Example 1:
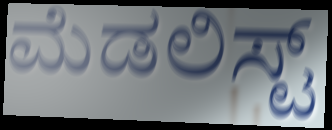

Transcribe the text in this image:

ಮೆಡಲಿಸ್ಟ್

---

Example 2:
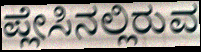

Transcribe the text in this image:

ಪ್ಲೇಸಿನಲ್ಲಿರುವ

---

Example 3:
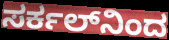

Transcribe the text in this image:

ಸರ್ಕಲ್‌ನಿಂದ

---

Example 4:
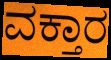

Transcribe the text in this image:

ವಕ್ತಾರ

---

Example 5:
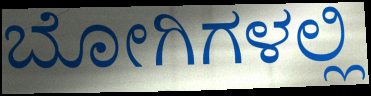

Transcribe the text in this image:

ಬೋಗಿಗಳಲ್ಲಿ